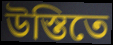
উস্তিতে